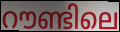
റൗണ്ടിലെ